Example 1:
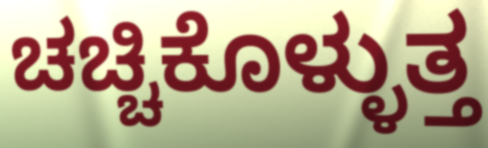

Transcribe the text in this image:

ಚಚ್ಚಿಕೊಳ್ಳುತ್ತ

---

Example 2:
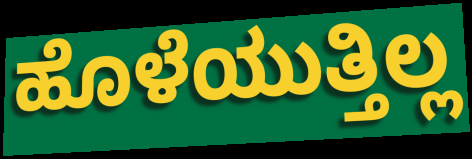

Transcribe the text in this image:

ಹೊಳೆಯುತ್ತಿಲ್ಲ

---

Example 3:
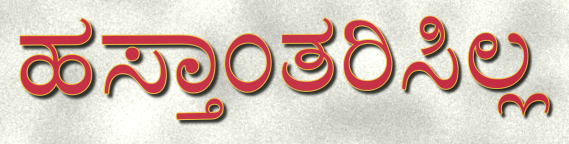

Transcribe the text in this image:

ಹಸ್ತಾಂತರಿಸಿಲ್ಲ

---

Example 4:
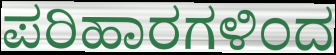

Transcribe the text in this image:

ಪರಿಹಾರಗಳಿಂದ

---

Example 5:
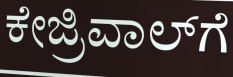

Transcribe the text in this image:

ಕೇಜ್ರಿವಾಲ್‍ಗೆ